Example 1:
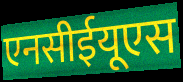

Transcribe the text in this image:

एनसीईयूएस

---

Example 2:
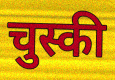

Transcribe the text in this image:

चुस्की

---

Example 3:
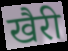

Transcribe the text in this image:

खैरी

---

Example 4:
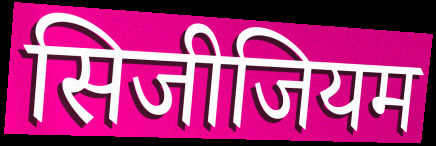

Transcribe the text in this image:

सिजीजियम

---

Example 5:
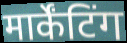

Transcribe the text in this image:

मार्केंटिंग